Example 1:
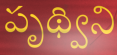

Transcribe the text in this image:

పృథ్విని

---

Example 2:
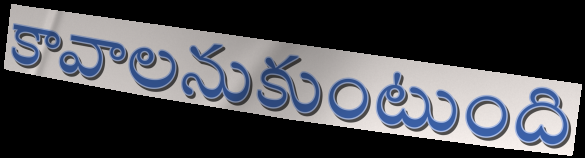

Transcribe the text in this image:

కావాలనుకుంటుంది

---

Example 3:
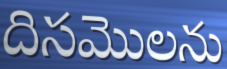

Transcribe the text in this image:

దిసమొలను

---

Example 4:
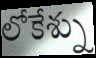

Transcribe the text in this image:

లోకేశ్ను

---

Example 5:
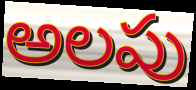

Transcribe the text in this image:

అలపు